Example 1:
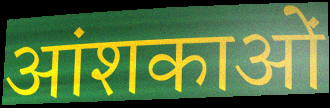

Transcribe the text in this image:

आंशकाओं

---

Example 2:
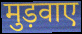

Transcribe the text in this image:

मुड़वाए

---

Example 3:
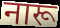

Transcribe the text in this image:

नारू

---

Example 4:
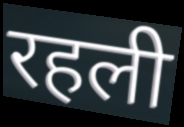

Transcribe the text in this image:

रहली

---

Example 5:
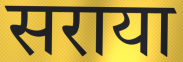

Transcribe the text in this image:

सराया